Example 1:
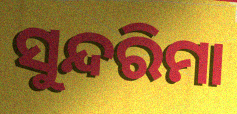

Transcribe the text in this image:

ସୁନ୍ଦରିମା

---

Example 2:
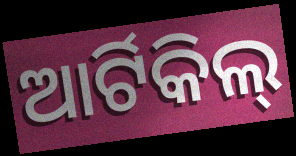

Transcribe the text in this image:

ଆର୍ଟିକିଲ୍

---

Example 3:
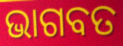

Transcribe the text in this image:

ଭାଗବତ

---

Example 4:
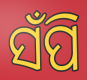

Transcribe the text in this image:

ସଁପି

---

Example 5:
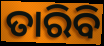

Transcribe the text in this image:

ତାରିବି